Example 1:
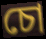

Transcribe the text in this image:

চো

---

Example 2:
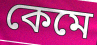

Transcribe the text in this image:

কেমে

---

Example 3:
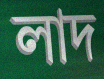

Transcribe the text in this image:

লাদ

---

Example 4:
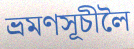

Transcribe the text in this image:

ভ্ৰমণসূচীলৈ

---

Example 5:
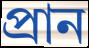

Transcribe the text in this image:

প্ৰান